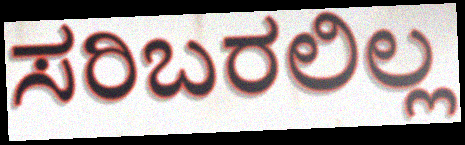
ಸರಿಬರಲಿಲ್ಲ